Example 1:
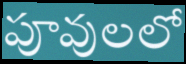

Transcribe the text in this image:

పూవులలో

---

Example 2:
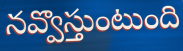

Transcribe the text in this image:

నవ్వొస్తుంటుంది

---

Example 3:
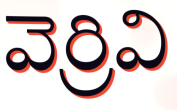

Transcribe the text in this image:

వెర్రివి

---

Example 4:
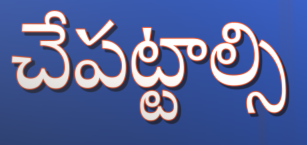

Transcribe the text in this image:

చేపట్టాల్సి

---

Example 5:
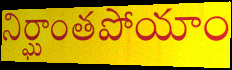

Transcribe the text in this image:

నిర్ఘాంతపోయాం